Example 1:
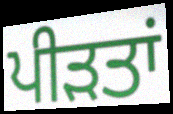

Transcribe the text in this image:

ਪੀੜਤਾਂ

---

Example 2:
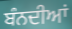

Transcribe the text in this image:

ਬੰਨਦੀਆਂ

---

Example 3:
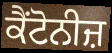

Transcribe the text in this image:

ਕੈਂਟੋਨੀਜ਼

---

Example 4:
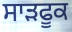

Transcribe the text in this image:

ਸਾੜਫੂਕ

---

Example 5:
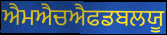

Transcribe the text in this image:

ਐਮਐਚਐਫਡਬਲਯੂ